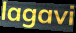
lagavi